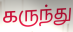
கருந்து